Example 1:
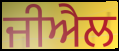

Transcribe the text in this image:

ਜੀਐਲ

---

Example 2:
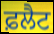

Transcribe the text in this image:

ਫ਼ਲੈਟ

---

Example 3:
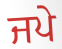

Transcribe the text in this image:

ਜਪੇ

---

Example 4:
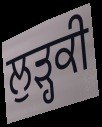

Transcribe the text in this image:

ਲੁੜ੍ਹਕੀ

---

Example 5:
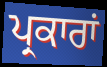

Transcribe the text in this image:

ਪ੍ਰਕਾਰਾਂ